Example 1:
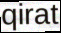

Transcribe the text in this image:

qirat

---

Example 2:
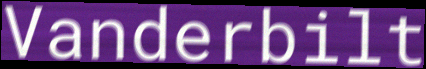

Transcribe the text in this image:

Vanderbilt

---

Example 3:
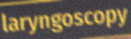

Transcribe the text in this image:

laryngoscopy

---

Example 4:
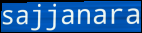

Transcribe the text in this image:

sajjanara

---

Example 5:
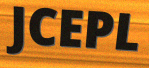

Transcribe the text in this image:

JCEPL